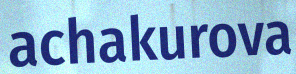
achakurova